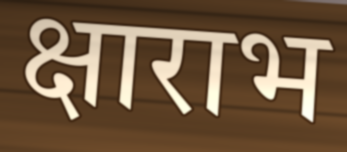
क्षाराभ